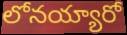
లోనయ్యారో